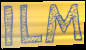
ILM